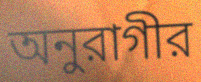
অনুরাগীর